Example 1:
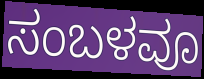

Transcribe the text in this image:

ಸಂಬಳವೂ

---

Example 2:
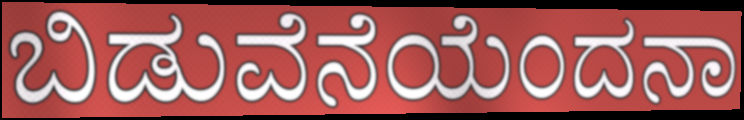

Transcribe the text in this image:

ಬಿಡುವೆನೆಯೆಂದನಾ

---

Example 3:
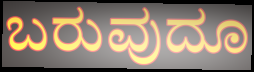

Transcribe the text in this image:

ಬರುವುದೂ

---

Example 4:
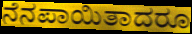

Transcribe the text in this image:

ನೆನಪಾಯಿತಾದರೂ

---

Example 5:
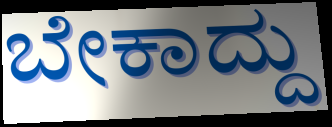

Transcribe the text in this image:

ಬೇಕಾದ್ದು